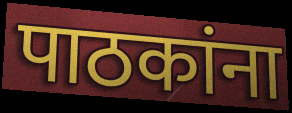
पाठकांना